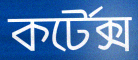
কর্টেক্স